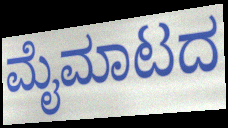
ಮೈಮಾಟದ